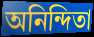
অনিন্দিতা